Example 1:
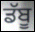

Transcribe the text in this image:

ਡੱਬੂ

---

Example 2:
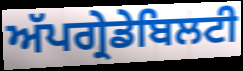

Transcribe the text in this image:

ਅੱਪਗ੍ਰੇਡੇਬਿਲਟੀ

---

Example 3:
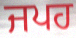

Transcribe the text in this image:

ਜਪਹ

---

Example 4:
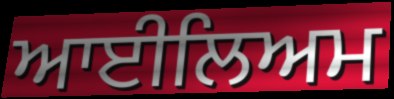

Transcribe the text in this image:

ਆਈਲਿਅਮ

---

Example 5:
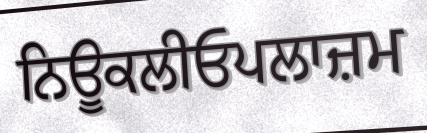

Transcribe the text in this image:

ਨਿਊਕਲੀਓਪਲਾਜ਼ਮ